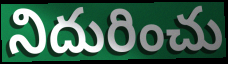
నిదురించు